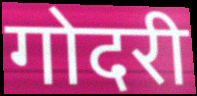
गोदरी